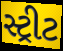
સ્ટ્રીટ